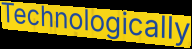
Technologically